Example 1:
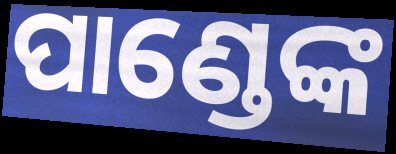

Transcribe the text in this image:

ପାଣ୍ଡେଙ୍କ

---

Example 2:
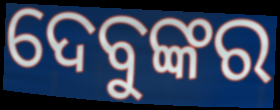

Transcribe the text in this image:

ଦେବୁଙ୍କର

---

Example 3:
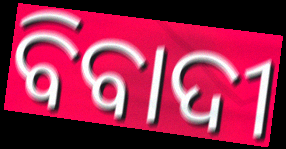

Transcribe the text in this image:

ବିବାଦୀ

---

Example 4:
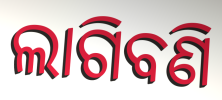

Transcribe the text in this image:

ଲାଗିବଣି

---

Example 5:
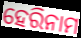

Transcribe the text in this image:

ହେରିନାମ